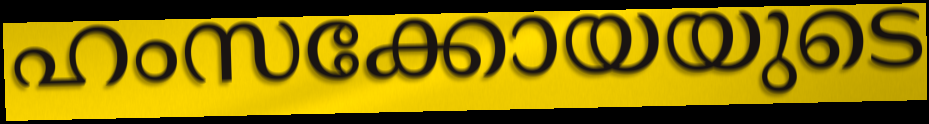
ഹംസക്കോയയുടെ